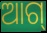
ଆଗ୍